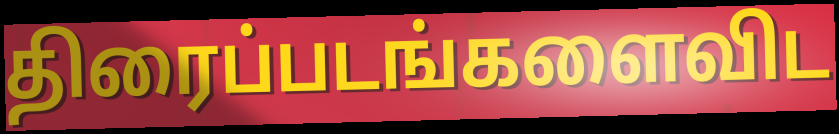
திரைப்படங்களைவிட